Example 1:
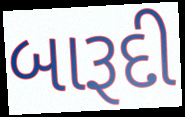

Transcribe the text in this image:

બારૂદી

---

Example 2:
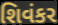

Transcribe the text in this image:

શિવંકર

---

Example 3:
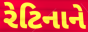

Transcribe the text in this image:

રેટિનાને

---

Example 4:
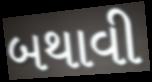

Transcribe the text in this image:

બથાવી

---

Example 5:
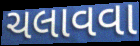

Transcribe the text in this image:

ચલાવવા